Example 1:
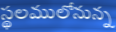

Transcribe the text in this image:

స్థలములోనున్న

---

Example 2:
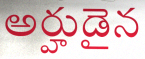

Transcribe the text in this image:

అర్హుడైన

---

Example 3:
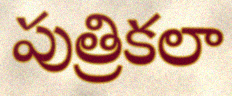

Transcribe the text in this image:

పుత్రికలా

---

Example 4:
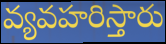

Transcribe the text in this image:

వ్యవహరిస్తారు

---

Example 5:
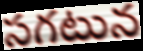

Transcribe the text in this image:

సగటున